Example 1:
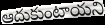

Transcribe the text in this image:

ఆదుకుంటాయని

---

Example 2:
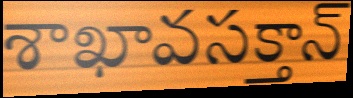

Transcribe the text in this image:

శాఖావసక్తాన్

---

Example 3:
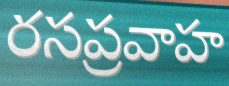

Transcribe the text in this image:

రసప్రవాహ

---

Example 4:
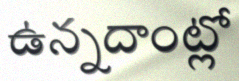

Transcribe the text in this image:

ఉన్నదాంట్లో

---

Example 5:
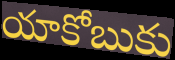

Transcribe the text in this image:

యాకోబుకు